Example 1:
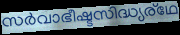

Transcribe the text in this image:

സർവാഭീഷ്ടസിദ്ധ്യര്ഥേ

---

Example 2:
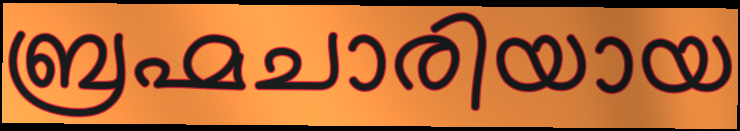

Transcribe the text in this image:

ബ്രഹ്മചാരിയായ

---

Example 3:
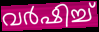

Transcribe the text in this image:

വർഷിച്ച്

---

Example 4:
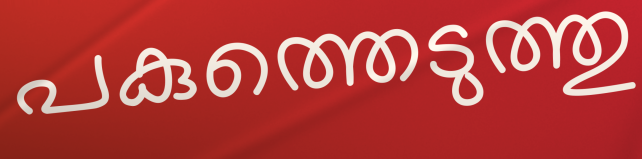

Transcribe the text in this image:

പകുത്തെടുത്തു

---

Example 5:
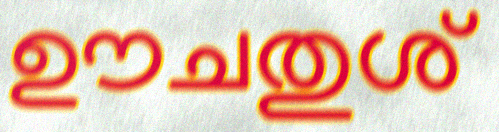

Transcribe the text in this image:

ഊചതുശ്